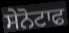
ਸੇਨੋਟਾਫ